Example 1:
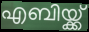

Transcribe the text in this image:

എബിയ്ക്ക്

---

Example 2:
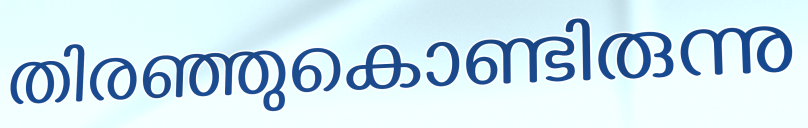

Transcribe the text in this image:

തിരഞ്ഞുകൊണ്ടിരുന്നു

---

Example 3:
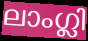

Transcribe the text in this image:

ലാംഗ്ലി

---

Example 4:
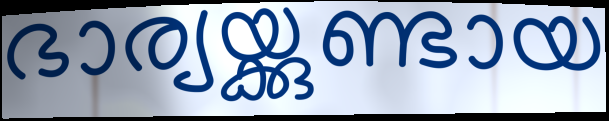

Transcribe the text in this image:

ഭാര്യയ്ക്കുണ്ടായ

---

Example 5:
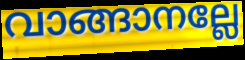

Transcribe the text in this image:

വാങ്ങാനല്ലേ